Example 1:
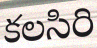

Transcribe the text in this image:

కలసిరి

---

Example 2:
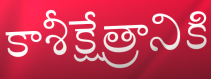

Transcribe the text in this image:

కాశీక్షేత్రానికి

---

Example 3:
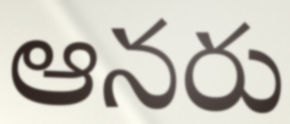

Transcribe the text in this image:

ఆనరు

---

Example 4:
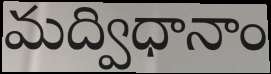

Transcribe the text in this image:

మద్విధానాం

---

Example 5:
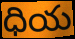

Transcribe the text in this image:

ధియ